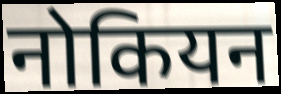
नोकियन